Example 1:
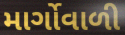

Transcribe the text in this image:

માર્ગોવાળી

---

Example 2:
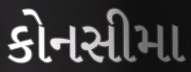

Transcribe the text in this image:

કોનસીમા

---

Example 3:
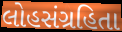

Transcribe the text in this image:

લોહસંગ્રહિતા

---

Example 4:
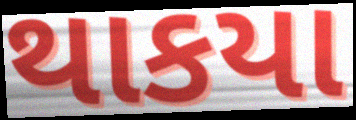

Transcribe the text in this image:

થાકયા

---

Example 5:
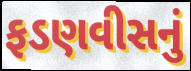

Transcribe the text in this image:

ફડણવીસનું